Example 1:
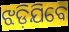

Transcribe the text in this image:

ଝଡ଼ିଯିବେ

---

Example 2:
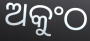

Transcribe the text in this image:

ଅକୁଂଠ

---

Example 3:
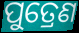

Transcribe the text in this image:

ପୁତ୍ରେଣ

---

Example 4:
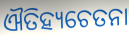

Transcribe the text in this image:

ଐତିହ୍ୟଚେତନା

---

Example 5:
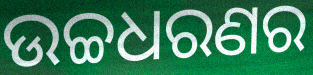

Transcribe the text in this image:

ଉଚ୍ଚଧରଣର